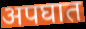
अपघात